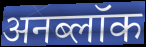
अनब्लॉक